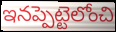
ఇనప్పెట్టెలోంచి